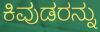
ಕಿವುಡರನ್ನು